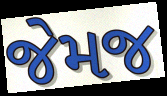
જેમજ